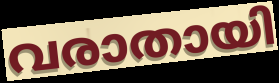
വരാതായി